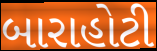
બારાહોટી